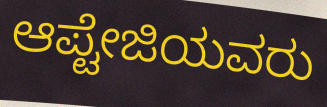
ಆಪ್ಟೇಜಿಯವರು